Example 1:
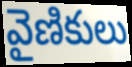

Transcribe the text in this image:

వైణికులు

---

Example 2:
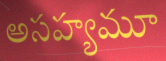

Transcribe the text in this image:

అసహ్యమూ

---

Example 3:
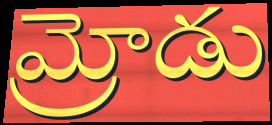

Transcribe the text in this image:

మ్రోడు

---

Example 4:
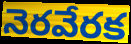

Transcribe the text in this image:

నెరవేరక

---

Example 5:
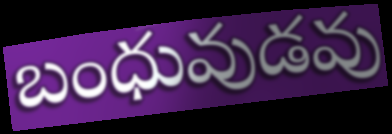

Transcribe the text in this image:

బంధువుడవు